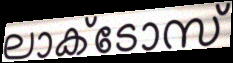
ലാക്ടോസ്